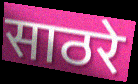
साठरे